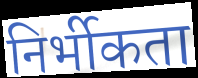
निर्भीकता